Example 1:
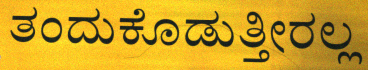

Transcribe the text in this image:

ತಂದುಕೊಡುತ್ತೀರಲ್ಲ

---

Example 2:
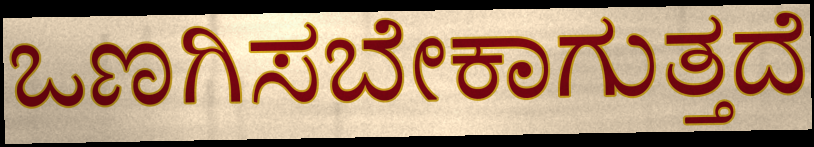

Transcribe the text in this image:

ಒಣಗಿಸಬೇಕಾಗುತ್ತದೆ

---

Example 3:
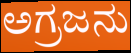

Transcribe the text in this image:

ಅಗ್ರಜನು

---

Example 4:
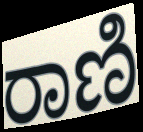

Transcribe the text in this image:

ರಾಣಿ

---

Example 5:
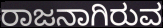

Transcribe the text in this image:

ರಾಜನಾಗಿರುವ